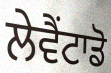
ਲੇਵੈਂਟਾਡੋ